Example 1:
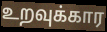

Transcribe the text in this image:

உறவுக்கார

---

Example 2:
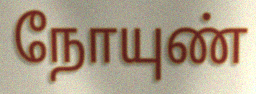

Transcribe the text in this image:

நோயுண்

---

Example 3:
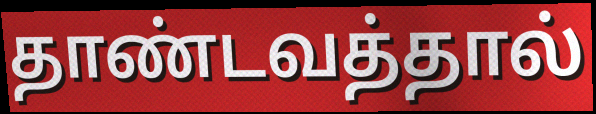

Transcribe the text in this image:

தாண்டவத்தால்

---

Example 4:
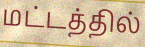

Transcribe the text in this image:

மட்டத்தில்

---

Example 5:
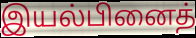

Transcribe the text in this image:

இயல்பினைத்